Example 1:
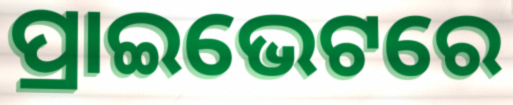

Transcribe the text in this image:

ପ୍ରାଇଭେଟରେ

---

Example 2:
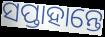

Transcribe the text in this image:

ସପ୍ତାହାନ୍ତେ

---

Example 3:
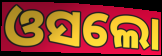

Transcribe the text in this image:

ଓସଲୋ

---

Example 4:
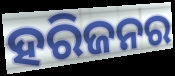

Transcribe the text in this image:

ହରିଜନର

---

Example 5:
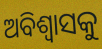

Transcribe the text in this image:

ଅବିଶ୍ୱାସକୁ